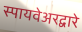
स्पायवेअरद्वारे